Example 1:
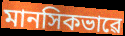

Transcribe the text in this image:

মানসিকভাৱে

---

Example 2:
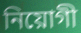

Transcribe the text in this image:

নিয়োগী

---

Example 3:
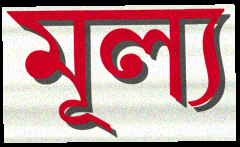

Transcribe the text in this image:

মূল্য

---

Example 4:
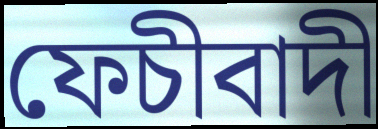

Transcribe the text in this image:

ফেচীবাদী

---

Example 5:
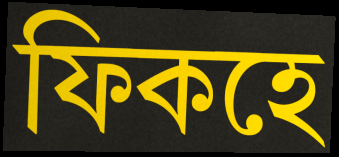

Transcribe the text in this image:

ফিকহে